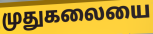
முதுகலையை